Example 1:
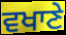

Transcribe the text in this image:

ਵਖਾਣੇ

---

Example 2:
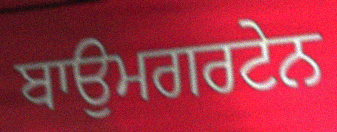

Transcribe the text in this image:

ਬਾਉਮਗਰਟੇਨ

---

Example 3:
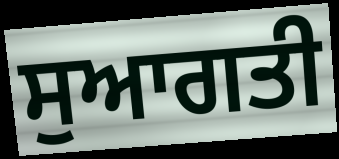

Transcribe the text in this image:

ਸੁਆਗਤੀ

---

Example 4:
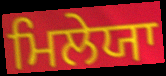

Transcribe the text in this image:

ਮਿਲੇਯਾ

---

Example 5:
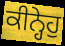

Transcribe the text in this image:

ਕੀਨ੍ਹੇਹੁ